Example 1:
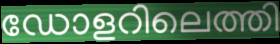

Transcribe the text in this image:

ഡോളറിലെത്തി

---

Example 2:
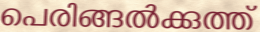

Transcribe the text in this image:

പെരിങ്ങൽക്കുത്ത്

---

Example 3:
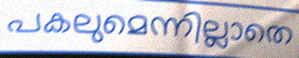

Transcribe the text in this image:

പകലുമെന്നില്ലാതെ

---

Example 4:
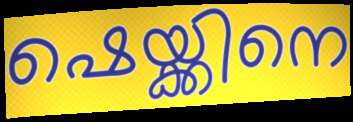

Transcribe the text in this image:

ഷെയ്ക്കിനെ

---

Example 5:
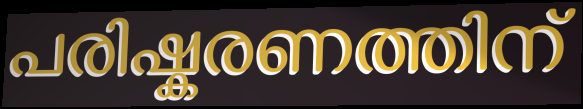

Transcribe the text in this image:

പരിഷ്കരണത്തിന്